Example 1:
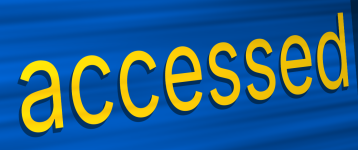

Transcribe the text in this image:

accessed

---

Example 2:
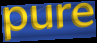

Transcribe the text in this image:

pure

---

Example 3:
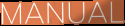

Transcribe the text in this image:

MANUAL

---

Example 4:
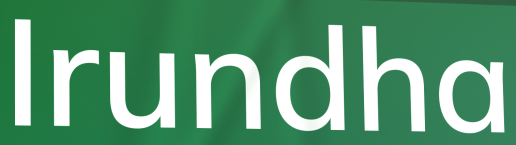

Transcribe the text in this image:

Irundha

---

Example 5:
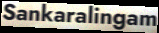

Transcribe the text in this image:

Sankaralingam